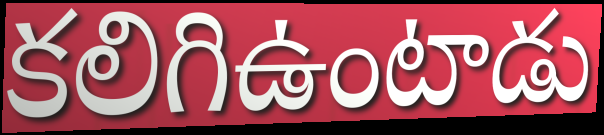
కలిగిఉంటాడు